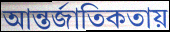
আন্তর্জাতিকতায়